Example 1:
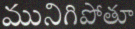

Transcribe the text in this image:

మునిగిపోతూ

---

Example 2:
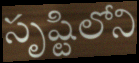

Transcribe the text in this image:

సృష్టిలోని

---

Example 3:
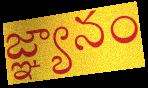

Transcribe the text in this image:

జ్ఞ్యానం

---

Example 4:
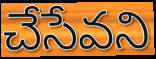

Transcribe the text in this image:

చేసేవని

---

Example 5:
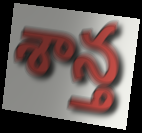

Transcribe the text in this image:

శాన్త